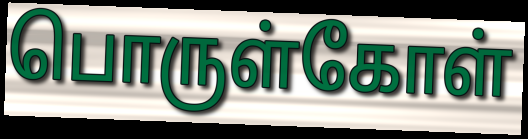
பொருள்கோள்